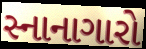
સ્નાનાગારો